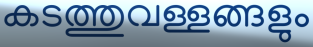
കടത്തുവള്ളങ്ങളും